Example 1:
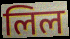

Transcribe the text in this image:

लिल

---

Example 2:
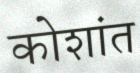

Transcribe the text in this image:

कोशांत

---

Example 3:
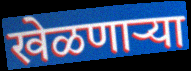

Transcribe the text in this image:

खेळणाऱ्या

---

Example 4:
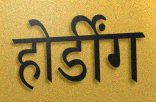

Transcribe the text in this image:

होर्डींग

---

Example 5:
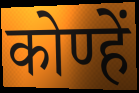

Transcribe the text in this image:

कोण्हें